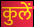
कुलें